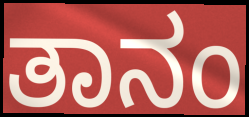
ತಾನಂ